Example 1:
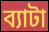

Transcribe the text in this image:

ব্যাটা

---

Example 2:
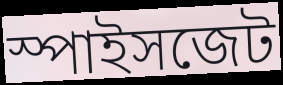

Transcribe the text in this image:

স্পাইসজেট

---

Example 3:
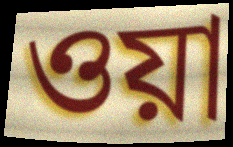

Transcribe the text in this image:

ওয়া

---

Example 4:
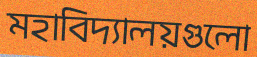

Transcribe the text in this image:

মহাবিদ্যালয়গুলো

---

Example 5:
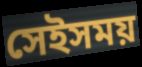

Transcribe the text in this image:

সেইসময়